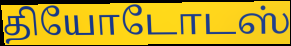
தியோடோடஸ்